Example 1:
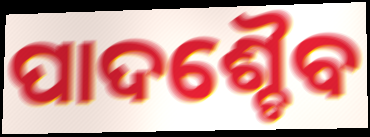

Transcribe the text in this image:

ପାଦଶ୍ଚୈବ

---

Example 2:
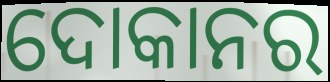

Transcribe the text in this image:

ଦୋକାନର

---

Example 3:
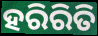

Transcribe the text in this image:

ହରିରିତି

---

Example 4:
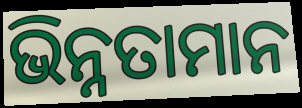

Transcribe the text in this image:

ଭିନ୍ନତାମାନ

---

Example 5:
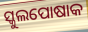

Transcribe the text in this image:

ସ୍କୁଲପୋଷାକ